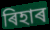
ৰিহাৰ